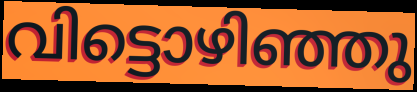
വിട്ടൊഴിഞ്ഞു